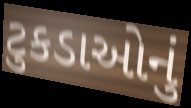
ટુકડાઓનું